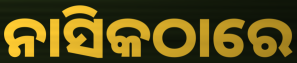
ନାସିକଠାରେ